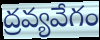
ద్రవ్యవేగం